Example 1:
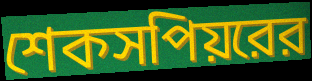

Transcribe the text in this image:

শেকসপিয়রের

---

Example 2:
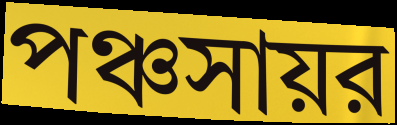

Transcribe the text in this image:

পঞ্চসায়র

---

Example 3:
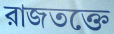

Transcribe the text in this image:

রাজতক্তে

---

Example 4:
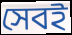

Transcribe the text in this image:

সেবই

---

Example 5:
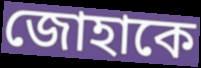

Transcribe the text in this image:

জোহাকে